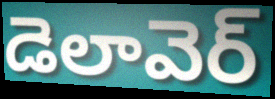
డెలావెర్